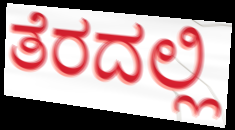
ತೆರದಲ್ಲಿ